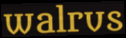
walrus